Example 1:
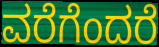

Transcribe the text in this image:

ವರೆಗೆಂದರೆ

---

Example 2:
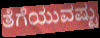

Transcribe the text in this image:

ತೆಗೆಯುವಷ್ಟು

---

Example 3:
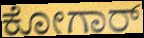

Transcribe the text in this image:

ಕೋಗಾರ್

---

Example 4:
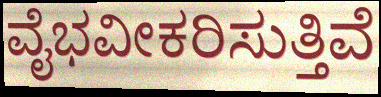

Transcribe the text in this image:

ವೈಭವೀಕರಿಸುತ್ತಿವೆ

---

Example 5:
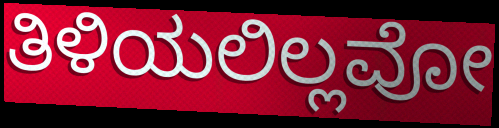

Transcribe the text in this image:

ತಿಳಿಯಲಿಲ್ಲವೋ